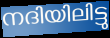
നദിയിലിട്ടു